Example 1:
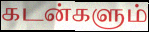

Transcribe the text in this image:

கடன்களும்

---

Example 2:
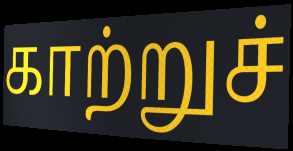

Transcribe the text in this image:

காற்றுச்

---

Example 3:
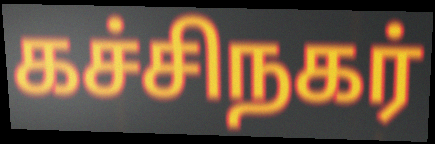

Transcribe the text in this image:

கச்சிநகர்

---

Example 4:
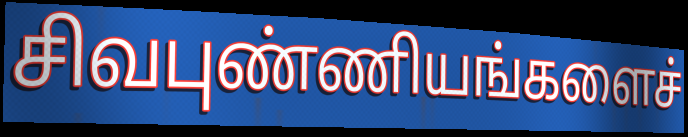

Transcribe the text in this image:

சிவபுண்ணியங்களைச்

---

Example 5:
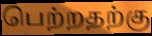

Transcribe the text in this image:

பெற்றதற்கு